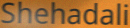
Shehadali